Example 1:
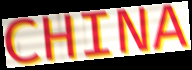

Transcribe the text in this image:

CHINA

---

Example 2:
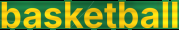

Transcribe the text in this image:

basketball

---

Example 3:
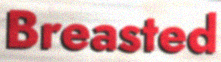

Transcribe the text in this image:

Breasted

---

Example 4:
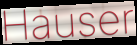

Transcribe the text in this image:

Hauser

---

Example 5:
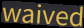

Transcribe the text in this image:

waived